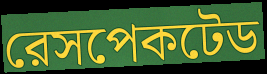
রেসপেকটেড